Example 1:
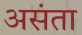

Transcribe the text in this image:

असंता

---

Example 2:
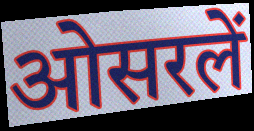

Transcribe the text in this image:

ओसरलें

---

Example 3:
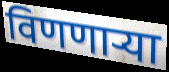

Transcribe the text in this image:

विणणाऱ्या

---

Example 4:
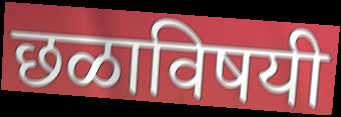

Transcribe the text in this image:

छळाविषयी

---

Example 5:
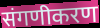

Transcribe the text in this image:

संगणीकरण